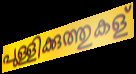
പുള്ളിക്കുത്തുകള്